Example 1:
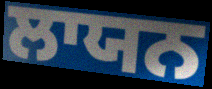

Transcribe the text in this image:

ਲਾਯਨ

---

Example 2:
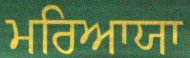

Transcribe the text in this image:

ਮਰਿਆਯਾ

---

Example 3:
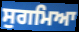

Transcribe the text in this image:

ਸੁਗਮਿਆ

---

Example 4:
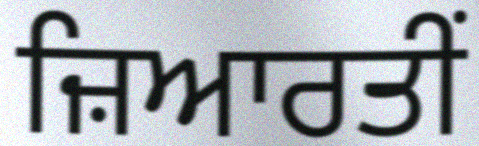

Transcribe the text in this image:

ਜ਼ਿਆਰਤੀਂ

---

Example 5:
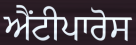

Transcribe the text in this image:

ਐਂਟੀਪਾਰੋਸ